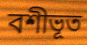
বশীভূত